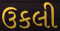
ઉકલી